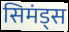
सिमंड्स